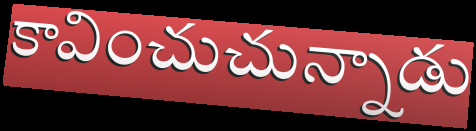
కావించుచున్నాడు